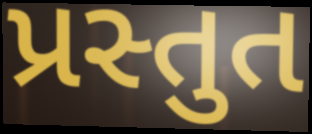
પ્રસ્તુત